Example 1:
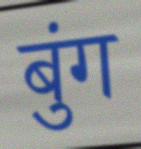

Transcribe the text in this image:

बुंग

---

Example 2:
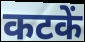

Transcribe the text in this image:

कटकें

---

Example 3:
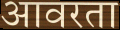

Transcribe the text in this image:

आवरता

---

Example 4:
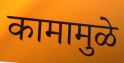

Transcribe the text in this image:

कामामुळे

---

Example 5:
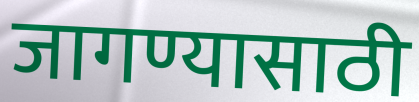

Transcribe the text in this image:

जागण्यासाठी